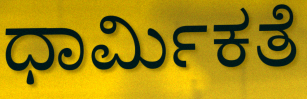
ಧಾರ್ಮಿಕತೆ